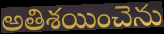
అతిశయించెను